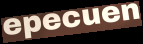
epecuen